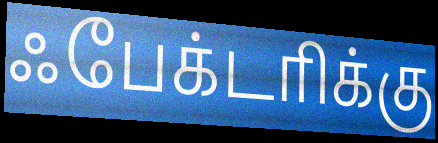
ஃபேக்டரிக்கு